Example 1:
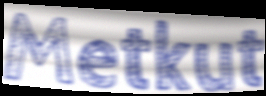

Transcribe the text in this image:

Metkut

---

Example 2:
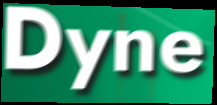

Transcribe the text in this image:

Dyne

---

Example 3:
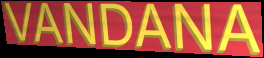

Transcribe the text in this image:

VANDANA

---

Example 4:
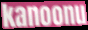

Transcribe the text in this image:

kanoonu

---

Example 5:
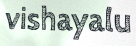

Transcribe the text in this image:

vishayalu